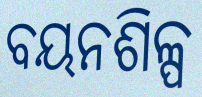
ବୟନଶିଳ୍ପ